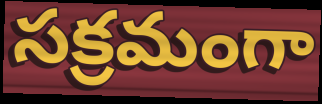
సక్రమంగా